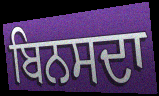
ਬਿਨਸਦਾ